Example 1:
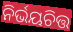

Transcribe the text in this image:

ନିର୍ଭୟଚିତ୍ତ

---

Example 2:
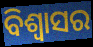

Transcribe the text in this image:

ବିଶ୍ବାସର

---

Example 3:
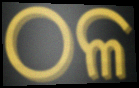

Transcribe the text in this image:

ଠଳ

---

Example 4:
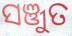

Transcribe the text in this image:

ସଞ୍ଜୁତ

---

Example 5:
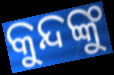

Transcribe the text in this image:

କୁନ୍ଦଙ୍କୁ